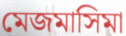
মেজমাসিমা